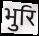
भुरि